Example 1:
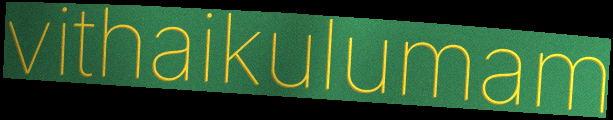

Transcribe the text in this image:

vithaikulumam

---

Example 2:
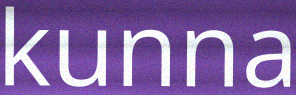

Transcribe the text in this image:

kunna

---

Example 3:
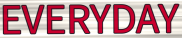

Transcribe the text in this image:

EVERYDAY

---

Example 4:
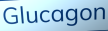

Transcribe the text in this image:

Glucagon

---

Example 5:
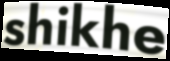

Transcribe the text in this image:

shikhe